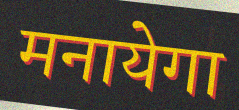
मनायेगा